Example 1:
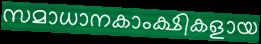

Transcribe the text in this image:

സമാധാനകാംക്ഷികളായ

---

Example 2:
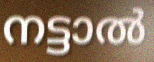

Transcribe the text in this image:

നട്ടാൽ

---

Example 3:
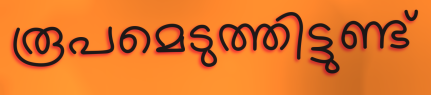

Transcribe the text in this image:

രൂപമെടുത്തിട്ടുണ്ട്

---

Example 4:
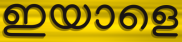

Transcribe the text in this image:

ഇയാളെ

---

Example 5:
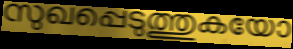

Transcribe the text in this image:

സുഖപ്പെടുത്തുകയോ